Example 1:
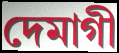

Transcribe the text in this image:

দেমাগী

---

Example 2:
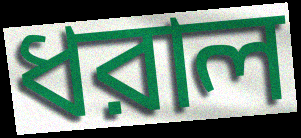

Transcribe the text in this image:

ধরাল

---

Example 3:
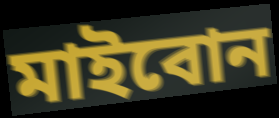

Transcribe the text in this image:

মাইবোন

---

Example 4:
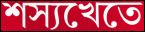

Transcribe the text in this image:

শস্যখেতে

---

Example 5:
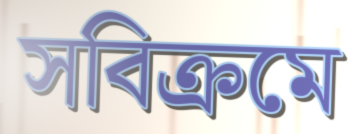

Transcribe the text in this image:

সবিক্রমে